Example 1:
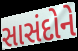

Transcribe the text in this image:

સાસંદોને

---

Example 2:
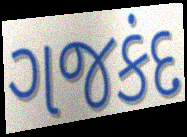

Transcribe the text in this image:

ગજકંદ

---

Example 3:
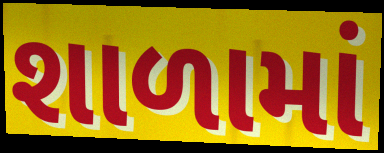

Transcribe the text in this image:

શાળામાં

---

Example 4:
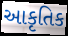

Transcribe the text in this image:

આકૃતિક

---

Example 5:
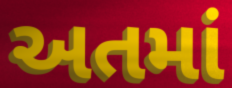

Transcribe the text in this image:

અતમાં